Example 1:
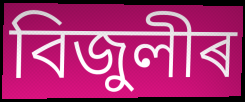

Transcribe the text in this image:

বিজুলীৰ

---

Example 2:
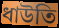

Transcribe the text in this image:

ধাউতি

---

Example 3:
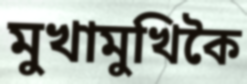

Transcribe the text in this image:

মুখামুখিকৈ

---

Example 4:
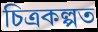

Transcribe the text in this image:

চিত্ৰকল্পত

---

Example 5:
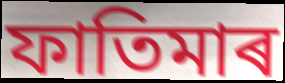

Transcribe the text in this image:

ফাতিমাৰ